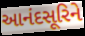
આનંદસૂરિને